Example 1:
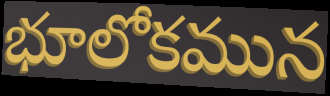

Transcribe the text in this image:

భూలోకమున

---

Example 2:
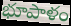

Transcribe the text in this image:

భూపాళం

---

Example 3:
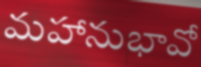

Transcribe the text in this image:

మహానుభావో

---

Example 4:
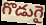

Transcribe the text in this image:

గొడుగై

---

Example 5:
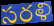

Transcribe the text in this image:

సరళి